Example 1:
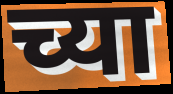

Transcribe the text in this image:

च्या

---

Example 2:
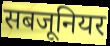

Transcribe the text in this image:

सबजूनियर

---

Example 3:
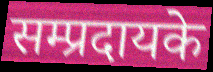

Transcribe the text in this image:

सम्प्रदायके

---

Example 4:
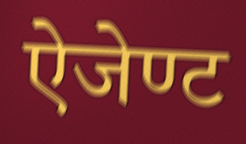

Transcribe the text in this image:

ऐजेण्ट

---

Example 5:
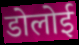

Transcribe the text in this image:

डोलोई